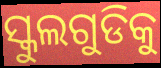
ସ୍କୁଲଗୁଡିକୁ